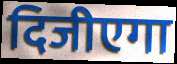
दिजीएगा